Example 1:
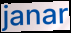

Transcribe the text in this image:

janar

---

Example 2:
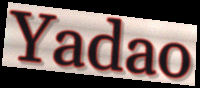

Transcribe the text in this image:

Yadao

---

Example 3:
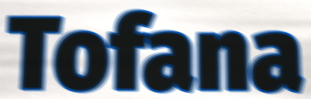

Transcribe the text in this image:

Tofana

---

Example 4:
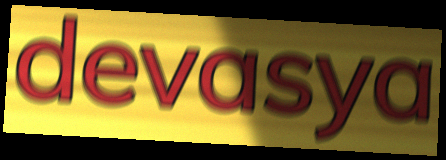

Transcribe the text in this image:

devasya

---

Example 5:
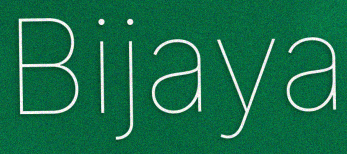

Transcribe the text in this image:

Bijaya